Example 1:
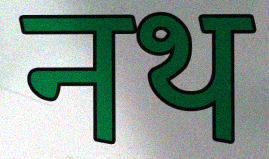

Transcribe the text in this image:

नथ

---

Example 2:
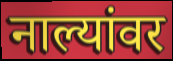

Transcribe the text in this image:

नाल्यांवर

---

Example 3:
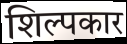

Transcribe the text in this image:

शिल्पकार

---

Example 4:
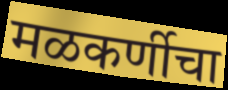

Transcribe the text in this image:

मळकर्णीचा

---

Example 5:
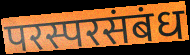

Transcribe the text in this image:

परस्परसंबंध